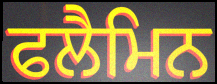
ਫਲੈਮਿਨ